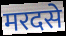
मरदसे